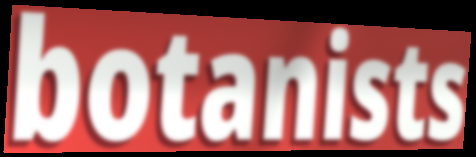
botanists